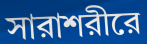
সারাশরীরে